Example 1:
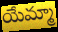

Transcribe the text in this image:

యేమ్మా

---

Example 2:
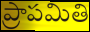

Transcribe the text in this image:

ప్రాపమితి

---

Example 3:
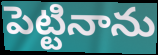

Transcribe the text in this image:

పెట్టినాను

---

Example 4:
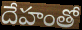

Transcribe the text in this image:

దేహంతో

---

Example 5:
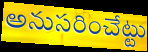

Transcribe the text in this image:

అనుసరించేట్టు